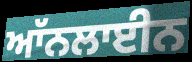
ਆੱਨਲਾਈਨ